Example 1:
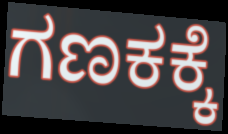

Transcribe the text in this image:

ಗಣಕಕ್ಕೆ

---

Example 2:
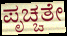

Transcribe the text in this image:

ಪೃಚ್ಚತೇ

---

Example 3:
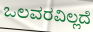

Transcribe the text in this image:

ಒಲವರವಿಲ್ಲದೆ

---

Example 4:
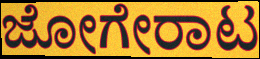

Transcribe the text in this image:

ಜೋಗೇರಾಟ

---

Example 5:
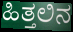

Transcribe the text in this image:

ಹಿತ್ತಲಿನ